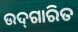
ଉଦ୍‌ଗାରିତ